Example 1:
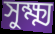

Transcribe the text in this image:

সুক্ষ্ম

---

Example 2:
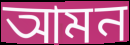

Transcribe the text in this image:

আমন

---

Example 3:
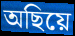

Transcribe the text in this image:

অছিয়ে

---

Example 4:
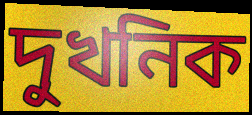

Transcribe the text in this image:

দুখনিক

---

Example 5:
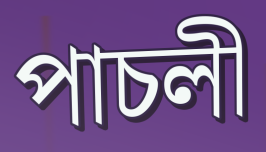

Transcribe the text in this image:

পাচলী